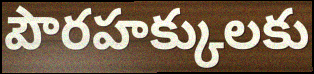
పౌరహక్కులకు